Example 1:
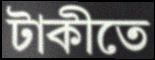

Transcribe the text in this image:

টাকীতে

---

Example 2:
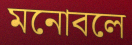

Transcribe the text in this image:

মনোবলে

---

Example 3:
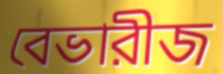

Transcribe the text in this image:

বেভারীজ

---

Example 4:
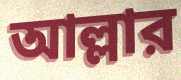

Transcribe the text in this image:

আল্লার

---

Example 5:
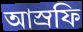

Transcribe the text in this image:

আস্রফি